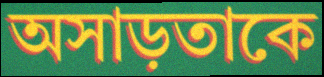
অসাড়তাকে